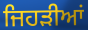
ਜਿਹੜੀਆਂ